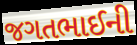
જગતભાઈની